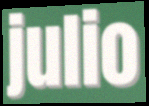
julio